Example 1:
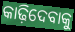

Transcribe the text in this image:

କାଢ଼ିଦେବାକୁ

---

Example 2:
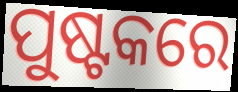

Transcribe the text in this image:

ପୁଷ୍ଟକରେ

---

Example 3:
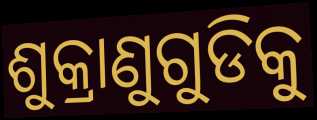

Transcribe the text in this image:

ଶୁକ୍ରାଣୁଗୁଡିକୁ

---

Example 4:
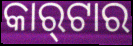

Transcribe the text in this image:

କାର୍‍ଟାର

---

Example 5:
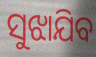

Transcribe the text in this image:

ସୁଝାଯିବ